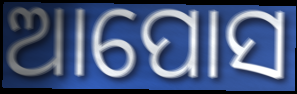
ଆପୋସ